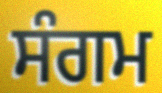
ਸੰਗਮ